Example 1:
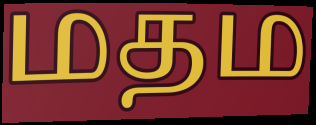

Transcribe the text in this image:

மதம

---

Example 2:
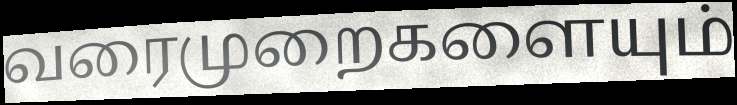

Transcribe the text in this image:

வரைமுறைகளையும்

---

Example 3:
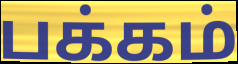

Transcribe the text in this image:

பக்கம்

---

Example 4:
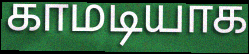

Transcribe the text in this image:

காமடியாக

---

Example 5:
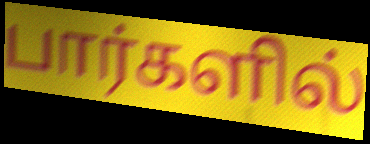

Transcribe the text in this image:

பார்களில்